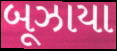
બૂઝાયા